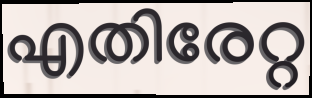
എതിരേറ്റ